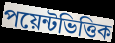
পয়েন্টভিত্তিক